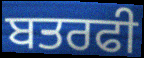
ਬਤਰਫੀ